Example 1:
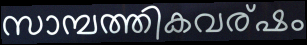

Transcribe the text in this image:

സാമ്പത്തികവര്ഷം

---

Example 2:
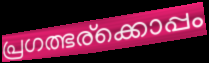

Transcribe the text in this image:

പ്രഗത്ഭര്ക്കൊപ്പം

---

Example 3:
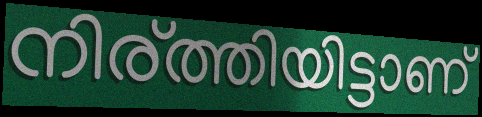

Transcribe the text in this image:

നിര്ത്തിയിട്ടാണ്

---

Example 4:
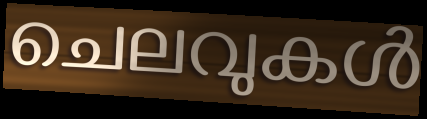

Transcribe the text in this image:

ചെലവുകൾ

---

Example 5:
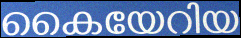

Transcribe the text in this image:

കൈയേറിയ